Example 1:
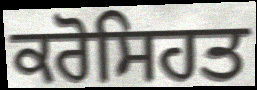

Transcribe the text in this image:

ਕਰੋਸਿਹਤ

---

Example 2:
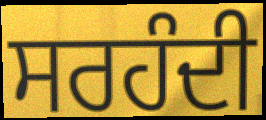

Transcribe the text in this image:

ਸਰਹੰਦੀ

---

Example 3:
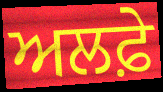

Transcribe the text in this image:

ਅਲਫ਼ੇ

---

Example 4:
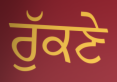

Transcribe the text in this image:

ਰੁੱਕਣੇ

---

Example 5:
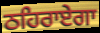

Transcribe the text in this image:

ਠਹਿਰਾਏਗਾ